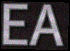
EA